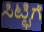
ಸಿಟ್ಟಿಗೆ